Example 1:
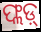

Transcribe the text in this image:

ଫ୍ଲଡ଼୍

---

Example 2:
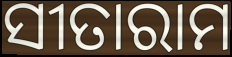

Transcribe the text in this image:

ସୀତାରାମ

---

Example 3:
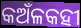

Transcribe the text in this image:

କଅଁଳକହୀ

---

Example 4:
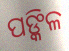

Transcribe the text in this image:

ପଙ୍କିଳ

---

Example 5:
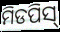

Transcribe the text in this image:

ମିଡପିସ୍